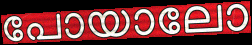
പോയാലോ